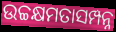
ଉଚ୍ଚକ୍ଷମତାସମ୍ପନ୍ନ